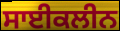
ਸਾਈਕਲੀਨ